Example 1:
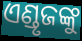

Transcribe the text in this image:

ଏଣ୍ଡୃଜଙ୍କୁ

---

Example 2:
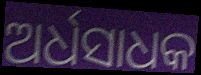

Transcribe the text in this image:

ଅର୍ଧସାଧକ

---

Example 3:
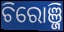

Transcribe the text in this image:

ଚିରୋଞ୍ଜି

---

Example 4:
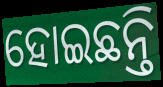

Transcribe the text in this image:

ହୋଇଛନ୍ତି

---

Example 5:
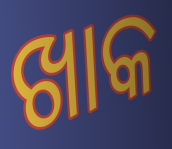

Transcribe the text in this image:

ଖାକ